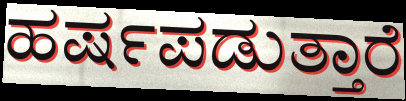
ಹರ್ಷಪಡುತ್ತಾರೆ